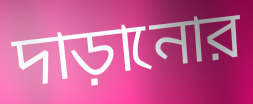
দাড়ানোর